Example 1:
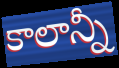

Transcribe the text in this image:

కాలాన్నీ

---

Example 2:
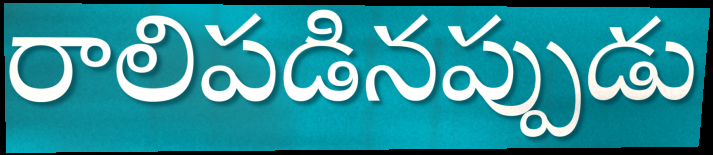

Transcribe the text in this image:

రాలిపడినప్పుడు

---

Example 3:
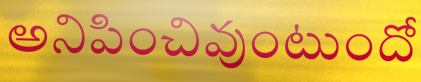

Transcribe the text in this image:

అనిపించివుంటుందో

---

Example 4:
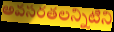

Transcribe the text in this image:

అవసరతలన్నిటిని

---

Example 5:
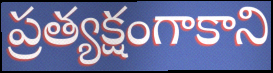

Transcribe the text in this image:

ప్రత్యక్షంగాకాని